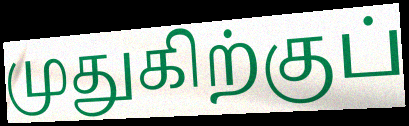
முதுகிற்குப்